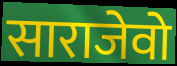
साराजेवो